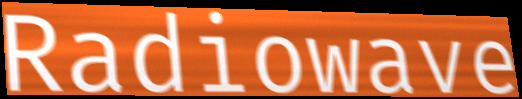
Radiowave